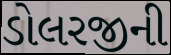
ડોલરજીની